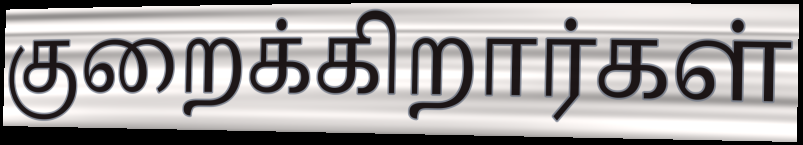
குறைக்கிறார்கள்